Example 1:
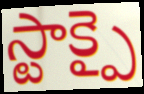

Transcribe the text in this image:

స్టాక్పై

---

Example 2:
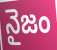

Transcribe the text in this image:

నైజం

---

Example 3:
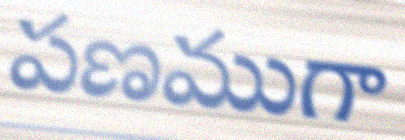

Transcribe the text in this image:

పణముగా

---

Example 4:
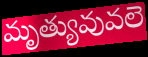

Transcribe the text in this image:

మృత్యువువలె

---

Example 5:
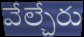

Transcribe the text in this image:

వేల్చేరు